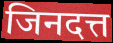
जिनदत्त